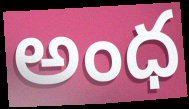
అంధ